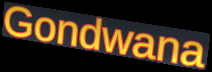
Gondwana